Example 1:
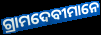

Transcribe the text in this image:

ଗ୍ରାମଦେବୀମାନେ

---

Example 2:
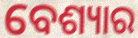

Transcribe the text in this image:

ବେଶ୍ୟାର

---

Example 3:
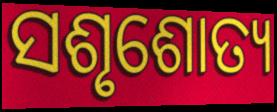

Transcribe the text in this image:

ସଶୃଶୋତ୍ୟ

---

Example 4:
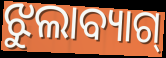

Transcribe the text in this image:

ଝୁଲାବ୍ୟାଗ୍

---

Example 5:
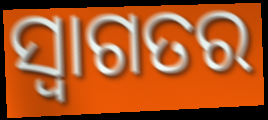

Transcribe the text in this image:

ସ୍ଵାଗତର